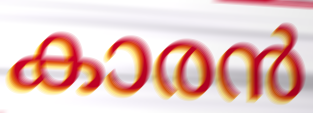
കാരൻ